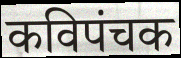
कविपंचक